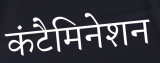
कंटैमिनेशन